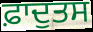
ਫ਼ਾਦੁਤਸ